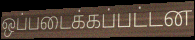
ஒப்படைக்கப்பட்டன